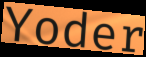
Yoder